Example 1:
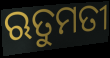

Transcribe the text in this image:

ଋତୁମତୀ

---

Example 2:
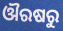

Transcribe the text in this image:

ଔରଷରୁ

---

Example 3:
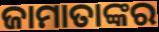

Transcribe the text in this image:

ଜାମାତାଙ୍କର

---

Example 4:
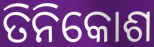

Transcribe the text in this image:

ତିନିକୋଶ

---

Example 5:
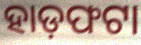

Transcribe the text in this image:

ହାଡ଼ଫଟା